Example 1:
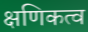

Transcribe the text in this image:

क्षणिकत्व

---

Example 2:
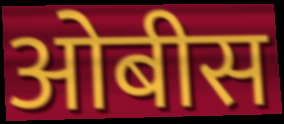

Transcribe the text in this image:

ओबीस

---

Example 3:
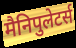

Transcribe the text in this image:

मैनिपुलेटर्स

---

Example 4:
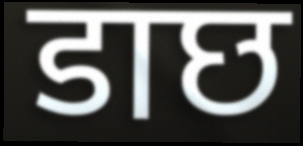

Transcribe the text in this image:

डाछ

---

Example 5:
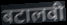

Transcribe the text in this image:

बटालवी